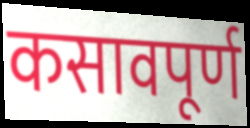
कसावपूर्ण